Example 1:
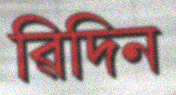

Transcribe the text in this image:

ৱিদিন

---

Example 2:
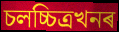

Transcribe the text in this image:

চলচ্চিত্ৰখনৰ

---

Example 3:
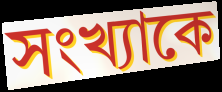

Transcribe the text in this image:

সংখ্যাকে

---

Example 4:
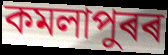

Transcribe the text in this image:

কমলাপুৰৰ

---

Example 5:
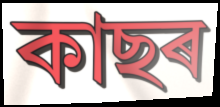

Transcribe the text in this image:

কাছৰ